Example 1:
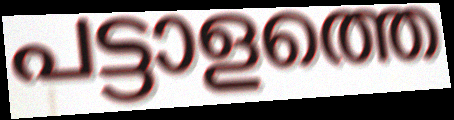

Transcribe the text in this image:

പട്ടാളത്തെ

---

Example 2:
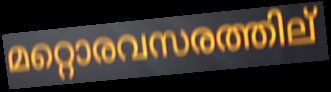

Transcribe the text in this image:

മറ്റൊരവസരത്തില്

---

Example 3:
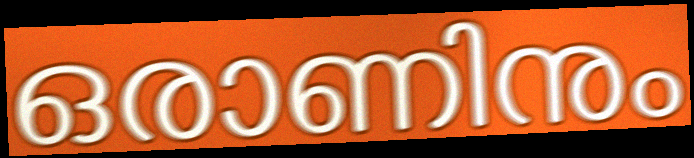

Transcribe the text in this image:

ഒരാണിനും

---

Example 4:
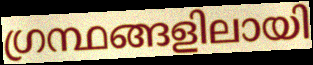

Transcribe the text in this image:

ഗ്രന്ഥങ്ങളിലായി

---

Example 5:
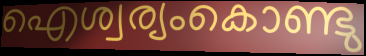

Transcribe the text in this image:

ഐശ്വര്യംകൊണ്ടു